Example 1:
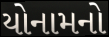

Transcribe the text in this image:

યોનામનો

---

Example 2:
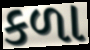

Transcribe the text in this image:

કળા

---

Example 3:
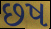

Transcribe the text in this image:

છષ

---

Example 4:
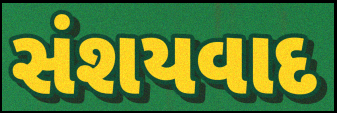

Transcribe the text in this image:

સંશયવાદ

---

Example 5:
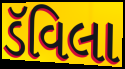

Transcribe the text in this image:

ડૅવિલા